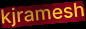
kjramesh